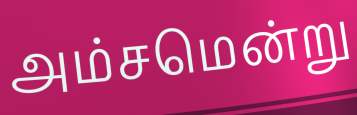
அம்சமென்று